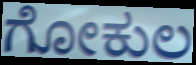
ಗೋಕುಲ